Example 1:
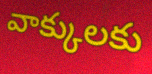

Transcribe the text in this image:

వాక్కులకు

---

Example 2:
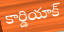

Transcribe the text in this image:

కార్డియాక్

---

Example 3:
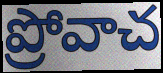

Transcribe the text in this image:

ప్రోవాచ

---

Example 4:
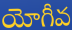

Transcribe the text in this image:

యోగీవ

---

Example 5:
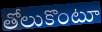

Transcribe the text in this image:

తోలుకొంటూ